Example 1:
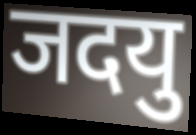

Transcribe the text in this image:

जदयु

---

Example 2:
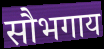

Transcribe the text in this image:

सौभगाय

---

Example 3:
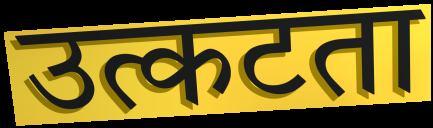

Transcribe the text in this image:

उत्कटता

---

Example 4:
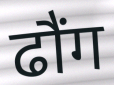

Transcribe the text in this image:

ढौंग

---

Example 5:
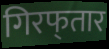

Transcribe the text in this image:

गिरफ्‌तार